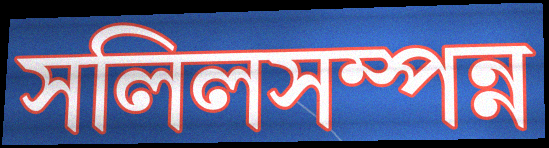
সলিলসম্পন্ন